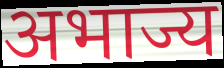
अभाज्य